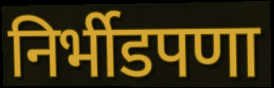
निर्भीडपणा